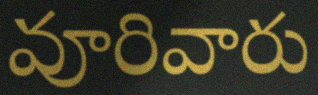
వూరివారు